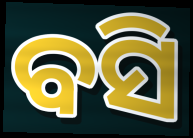
ବସି